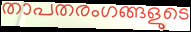
താപതരംഗങ്ങളുടെ